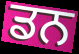
ਡਨ